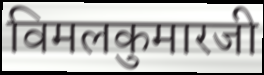
विमलकुमारजी